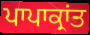
ਪਾਪਾਕ੍ਰਾਂਤ